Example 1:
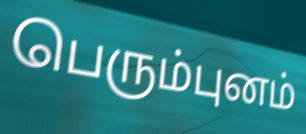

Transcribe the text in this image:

பெரும்புனம்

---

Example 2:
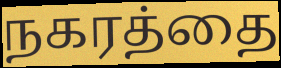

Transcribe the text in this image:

நகரத்தை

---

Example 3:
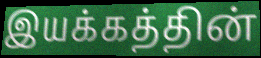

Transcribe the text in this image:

இயக்கத்தின்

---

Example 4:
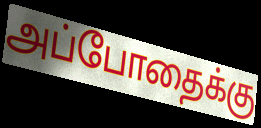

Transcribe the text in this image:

அப்போதைக்கு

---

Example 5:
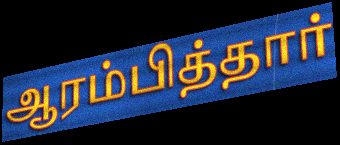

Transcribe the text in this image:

ஆரம்பித்தார்